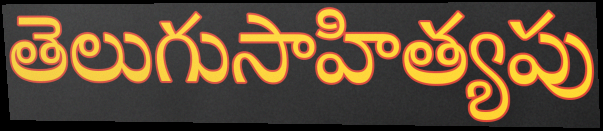
తెలుగుసాహిత్యపు